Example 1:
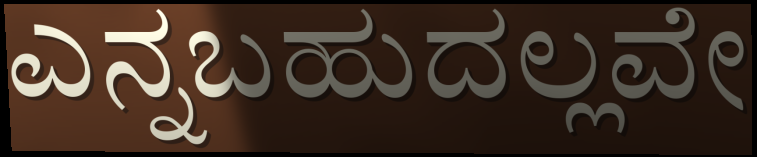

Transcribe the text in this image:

ಎನ್ನಬಹುದಲ್ಲವೇ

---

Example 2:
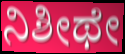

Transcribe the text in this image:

ನಿಶೀಥೇ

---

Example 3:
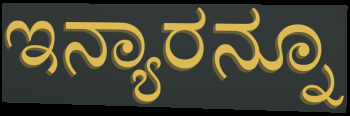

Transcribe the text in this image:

ಇನ್ಯಾರನ್ನೂ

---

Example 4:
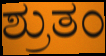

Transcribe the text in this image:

ಶ್ರುತಂ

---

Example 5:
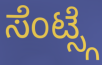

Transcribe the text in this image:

ಸೆಂಟ್ಸ್ಗೆ